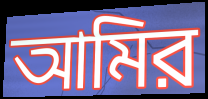
আমির